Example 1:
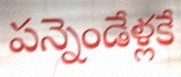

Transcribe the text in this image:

పన్నెండేళ్లకే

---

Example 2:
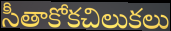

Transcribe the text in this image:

సీతాకోకచిలుకలు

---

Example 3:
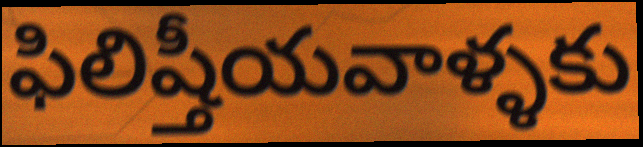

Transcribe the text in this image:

ఫిలిష్తీయవాళ్ళకు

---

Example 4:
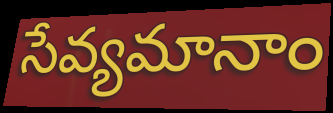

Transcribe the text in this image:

సేవ్యమానాం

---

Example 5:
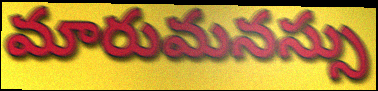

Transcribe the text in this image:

మారుమనస్సు